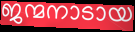
ജന്മനാടായ